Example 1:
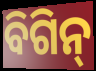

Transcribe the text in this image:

ବିଗିନ୍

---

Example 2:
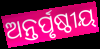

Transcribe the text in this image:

ଅନ୍ତର୍ପୃଷ୍ଠୀୟ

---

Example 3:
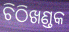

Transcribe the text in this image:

ଚିଠିଖଣ୍ଡକ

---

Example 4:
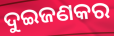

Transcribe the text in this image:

ଦୁଇଜଣକର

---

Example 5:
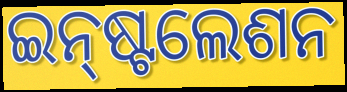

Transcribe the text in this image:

ଇନ୍‌ଷ୍ଟଲେଶନ